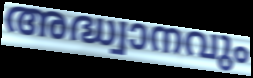
അദ്ധ്വാനവും